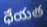
ధేయత